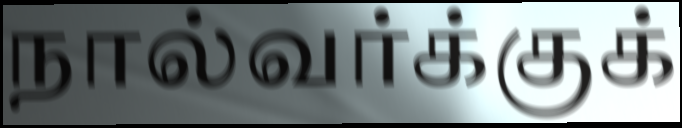
நால்வர்க்குக்